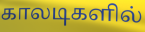
காலடிகளில்